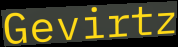
Gevirtz